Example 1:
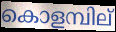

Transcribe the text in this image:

കൊളമ്പില്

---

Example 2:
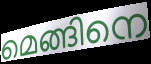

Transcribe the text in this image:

മെങ്ങിനെ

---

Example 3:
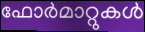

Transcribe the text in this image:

ഫോർമാറ്റുകൾ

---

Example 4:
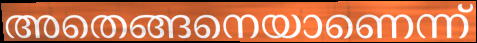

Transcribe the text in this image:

അതെങ്ങനെയാണെന്ന്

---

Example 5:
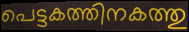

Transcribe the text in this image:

പെട്ടകത്തിനകത്തു